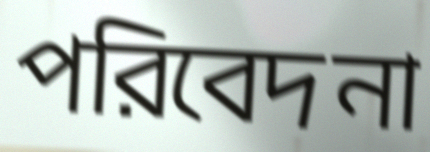
পরিবেদনা